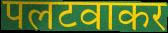
पलटवाकर